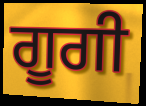
ਗੂਗੀ